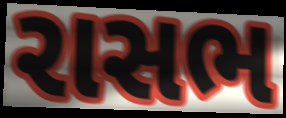
રાસભ